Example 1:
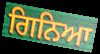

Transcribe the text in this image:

ਗਿਨਿਆ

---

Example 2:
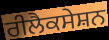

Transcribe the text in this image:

ਰੀਲੈਕਸੇਸ਼ਨ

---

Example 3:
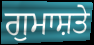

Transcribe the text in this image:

ਗੁਮਾਸ਼ਤੇ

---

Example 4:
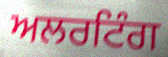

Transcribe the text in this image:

ਅਲਰਟਿੰਗ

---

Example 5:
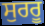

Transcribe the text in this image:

ਸੁਰਰੂ